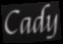
Cady